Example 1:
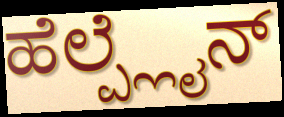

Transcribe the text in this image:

ಹೆಲ್ಪ್ಲೈನ್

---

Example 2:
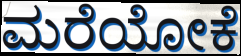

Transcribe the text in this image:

ಮರೆಯೋಕೆ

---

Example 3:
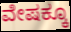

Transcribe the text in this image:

ವೇಷಕ್ಕೂ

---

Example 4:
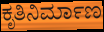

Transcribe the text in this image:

ಕೃತಿನಿರ್ಮಾಣ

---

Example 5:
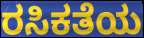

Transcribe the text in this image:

ರಸಿಕತೆಯ